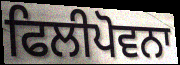
ਫਿਲੀਪੋਵਨਾ